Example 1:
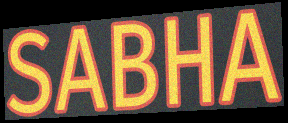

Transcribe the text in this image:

SABHA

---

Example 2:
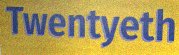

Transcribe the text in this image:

Twentyeth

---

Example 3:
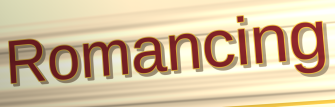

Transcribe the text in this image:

Romancing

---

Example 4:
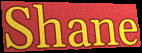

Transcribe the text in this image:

Shane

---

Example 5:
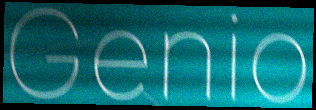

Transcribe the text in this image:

Genio